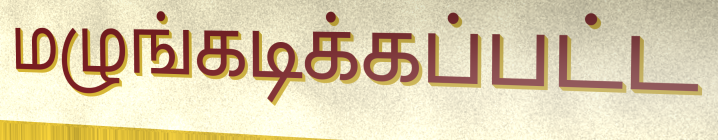
மழுங்கடிக்கப்பட்ட